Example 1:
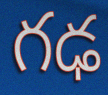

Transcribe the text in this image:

గఢ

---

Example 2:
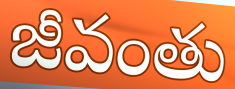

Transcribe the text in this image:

జీవంతు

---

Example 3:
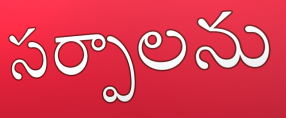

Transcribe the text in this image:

సర్పాలను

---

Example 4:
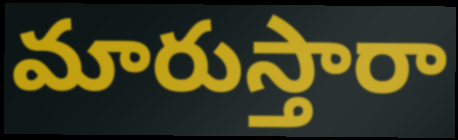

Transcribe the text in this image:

మారుస్తారా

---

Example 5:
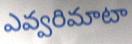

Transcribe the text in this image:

ఎవ్వరిమాటా